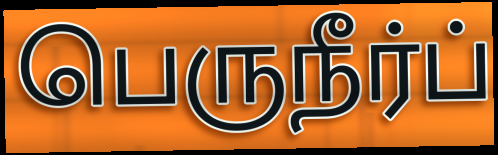
பெருநீர்ப்